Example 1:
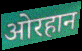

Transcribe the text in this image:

ओरहान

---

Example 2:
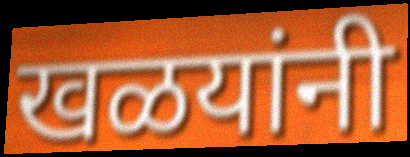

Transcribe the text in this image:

खळयांनी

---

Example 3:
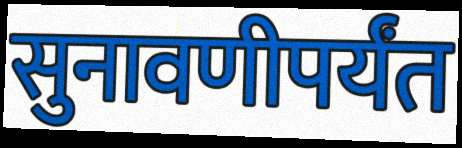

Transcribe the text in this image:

सुनावणीपर्यंत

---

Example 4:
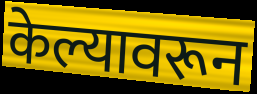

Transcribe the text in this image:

केल्यावरून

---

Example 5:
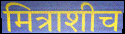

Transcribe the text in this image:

मित्राशीच